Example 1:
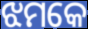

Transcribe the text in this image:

ଝମକେ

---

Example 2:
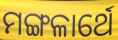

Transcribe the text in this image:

ମଙ୍ଗଳାର୍ଥେ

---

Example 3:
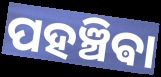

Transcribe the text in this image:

ପହଞ୍ଚିଵା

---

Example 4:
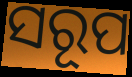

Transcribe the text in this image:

ସରୂପ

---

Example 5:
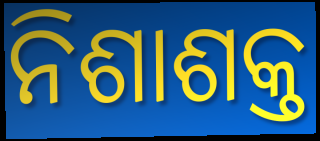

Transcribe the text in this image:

ନିଶାଶକ୍ତ